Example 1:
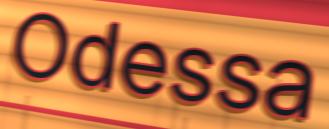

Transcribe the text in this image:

Odessa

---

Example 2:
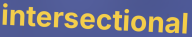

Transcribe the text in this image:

intersectional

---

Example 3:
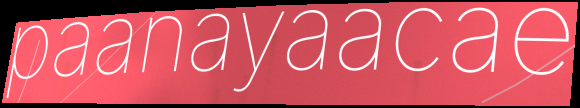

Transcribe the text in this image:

paanayaacae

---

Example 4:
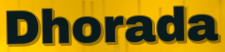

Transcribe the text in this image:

Dhorada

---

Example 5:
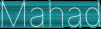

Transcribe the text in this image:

Mahad